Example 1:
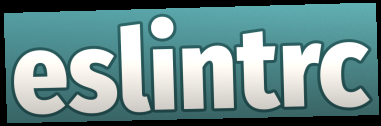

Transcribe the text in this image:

eslintrc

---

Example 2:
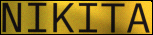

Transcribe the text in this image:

NIKITA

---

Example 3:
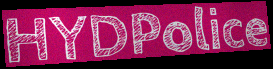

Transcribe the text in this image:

HYDPolice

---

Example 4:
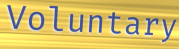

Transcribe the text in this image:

Voluntary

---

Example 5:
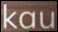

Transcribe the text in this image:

kau